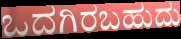
ಒದಗಿರಬಹುದು